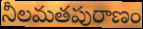
నీలమతపురాణం